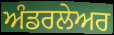
ਅੰਡਰਲੇਅਰ